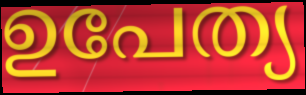
ഉപേത്യ